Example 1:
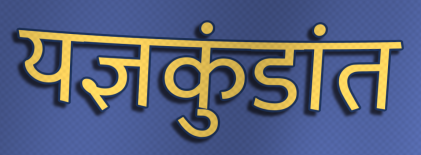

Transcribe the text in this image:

यज्ञकुंडांत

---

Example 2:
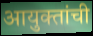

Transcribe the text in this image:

आयुक्तांची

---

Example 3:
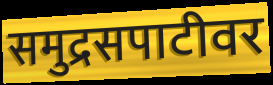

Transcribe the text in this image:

समुद्रसपाटीवर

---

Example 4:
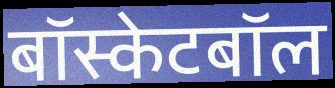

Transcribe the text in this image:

बॉस्केटबॉल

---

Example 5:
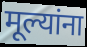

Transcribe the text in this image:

मूल्यांना